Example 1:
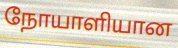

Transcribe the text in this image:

நோயாளியான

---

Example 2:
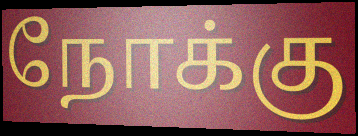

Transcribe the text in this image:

நோக்கு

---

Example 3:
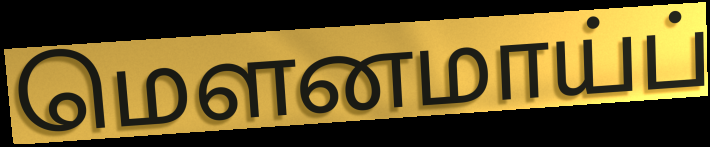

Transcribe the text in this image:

மௌனமாய்ப்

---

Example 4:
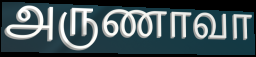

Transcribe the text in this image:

அருணாவா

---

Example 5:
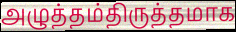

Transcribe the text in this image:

அழுத்தம்திருத்தமாக